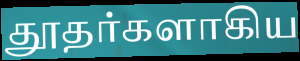
தூதர்களாகிய